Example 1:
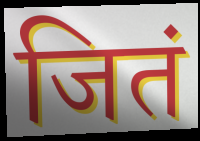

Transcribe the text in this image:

जितं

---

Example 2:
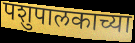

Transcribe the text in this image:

पशुपालकाच्या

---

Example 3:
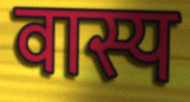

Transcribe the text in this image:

वास्य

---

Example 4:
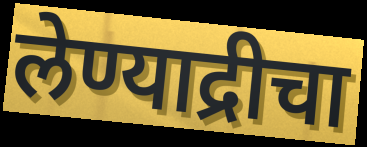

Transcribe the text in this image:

लेण्याद्रीचा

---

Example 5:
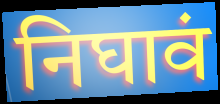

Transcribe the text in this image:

निघावं